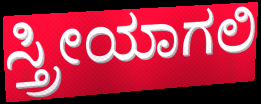
ಸ್ತ್ರೀಯಾಗಲಿ